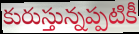
కురుస్తున్నప్పటికీ